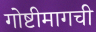
गोष्टीमागची